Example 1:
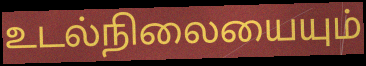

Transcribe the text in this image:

உடல்நிலையையும்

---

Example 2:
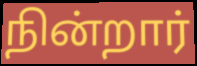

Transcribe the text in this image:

நின்றார்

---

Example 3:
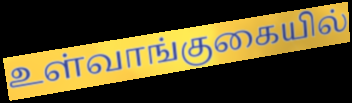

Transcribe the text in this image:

உள்வாங்குகையில்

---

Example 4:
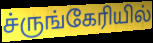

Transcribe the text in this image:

ச்ருங்கேரியில்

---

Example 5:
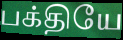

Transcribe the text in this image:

பக்தியே